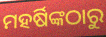
ମହର୍ଷିଙ୍କଠାରୁ